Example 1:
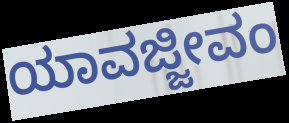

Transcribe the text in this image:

ಯಾವಜ್ಜೀವಂ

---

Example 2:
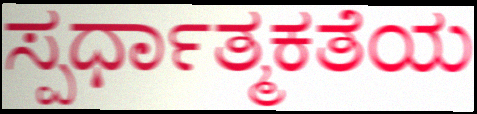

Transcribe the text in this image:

ಸ್ಪರ್ಧಾತ್ಮಕತೆಯ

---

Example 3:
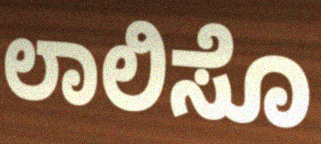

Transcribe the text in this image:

ಲಾಲಿಸೊ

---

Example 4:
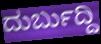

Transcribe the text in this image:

ದುರ್ಬುದ್ದಿ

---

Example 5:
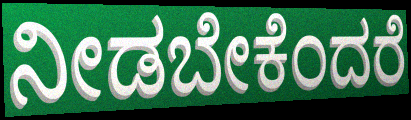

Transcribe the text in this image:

ನೀಡಬೇಕೆಂದರೆ